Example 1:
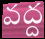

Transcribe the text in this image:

వద్ద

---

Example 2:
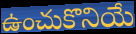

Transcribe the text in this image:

ఉంచుకొనియే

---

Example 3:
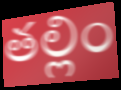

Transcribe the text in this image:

తల్లిం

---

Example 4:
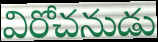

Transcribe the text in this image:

విరోచనుడు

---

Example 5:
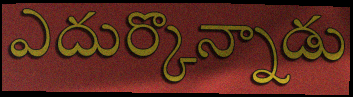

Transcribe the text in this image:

ఎదుర్కొన్నాడు